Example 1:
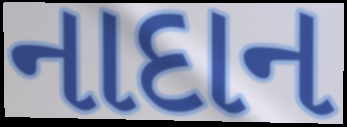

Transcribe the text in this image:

નાદાન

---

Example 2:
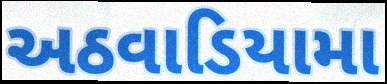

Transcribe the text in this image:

અઠવાડિયામા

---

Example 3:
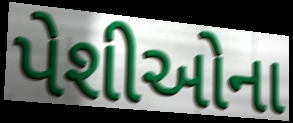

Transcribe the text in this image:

પેશીઓના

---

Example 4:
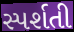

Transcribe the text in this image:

સ્પર્શતી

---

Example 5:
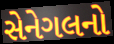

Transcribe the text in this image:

સેનેગલનો